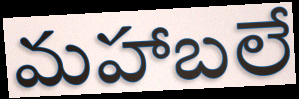
మహాబలే